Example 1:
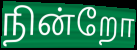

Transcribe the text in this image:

நின்றோ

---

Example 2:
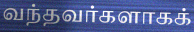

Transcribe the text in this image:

வந்தவர்களாகக்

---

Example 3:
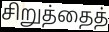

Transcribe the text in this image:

சிறுத்தைத்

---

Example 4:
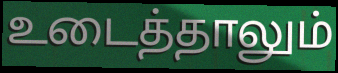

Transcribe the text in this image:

உடைத்தாலும்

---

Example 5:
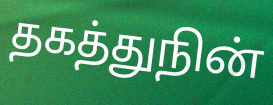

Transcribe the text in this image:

தகத்துநின்